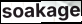
soakage